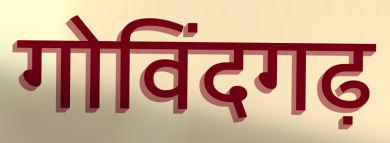
गोविंदगढ़